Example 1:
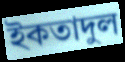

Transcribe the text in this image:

ইকতাদুল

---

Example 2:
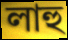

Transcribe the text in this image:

লাহু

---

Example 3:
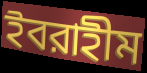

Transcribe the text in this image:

ইবরাহীম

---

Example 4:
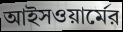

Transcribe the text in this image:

আইসওয়ার্মের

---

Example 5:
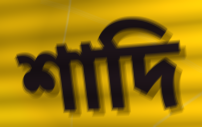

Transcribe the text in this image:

শাদি